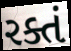
રક્તં